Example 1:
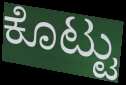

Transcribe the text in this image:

ಕೊಟ್ಟು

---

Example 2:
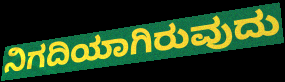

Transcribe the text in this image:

ನಿಗದಿಯಾಗಿರುವುದು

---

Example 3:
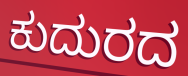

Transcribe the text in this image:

ಕುದುರದ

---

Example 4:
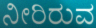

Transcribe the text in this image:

ನೀರಿರುವ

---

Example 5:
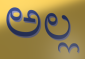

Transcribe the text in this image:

ಅಲ್ಲ